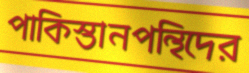
পাকিস্তানপন্থিদের